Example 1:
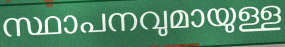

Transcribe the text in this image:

സ്ഥാപനവുമായുള്ള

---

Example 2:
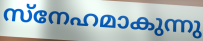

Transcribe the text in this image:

സ്നേഹമാകുന്നു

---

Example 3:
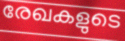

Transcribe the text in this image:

രേഖകളുടെ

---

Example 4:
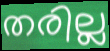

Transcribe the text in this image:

തരില്ല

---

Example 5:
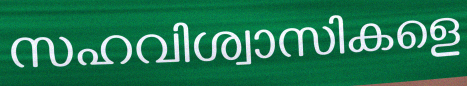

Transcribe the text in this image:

സഹവിശ്വാസികളെ